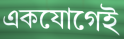
একযোগেই